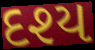
દશ્ય